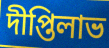
দীপ্তিলাভ